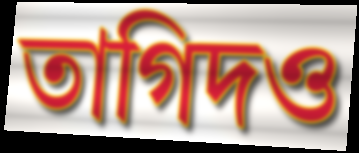
তাগিদও